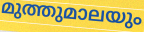
മുത്തുമാലയും